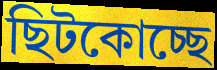
ছিটকোচ্ছে